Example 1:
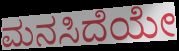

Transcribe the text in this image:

ಮನಸಿದೆಯೇ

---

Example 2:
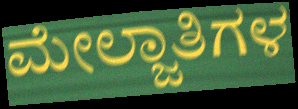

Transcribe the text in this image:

ಮೇಲ್ಜಾತಿಗಳ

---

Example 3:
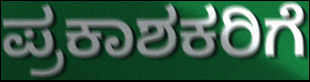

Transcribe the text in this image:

ಪ್ರಕಾಶಕರಿಗೆ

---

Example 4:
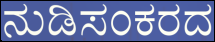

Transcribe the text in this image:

ನುಡಿಸಂಕರದ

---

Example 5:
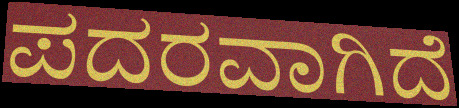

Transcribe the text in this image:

ಪದರವಾಗಿದೆ